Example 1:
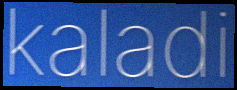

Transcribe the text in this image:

kaladi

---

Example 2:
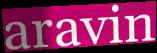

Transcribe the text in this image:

aravin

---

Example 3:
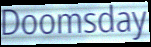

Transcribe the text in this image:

Doomsday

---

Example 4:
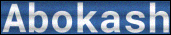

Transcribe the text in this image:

Abokash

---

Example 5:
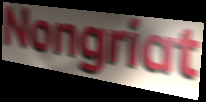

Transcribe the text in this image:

Nongriat